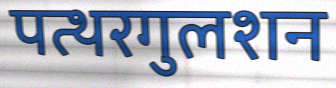
पत्थरगुलशन